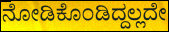
ನೋಡಿಕೊಂಡಿದ್ದಲ್ಲದೇ